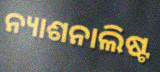
ନ୍ୟାଶନାଲିଷ୍ଟ